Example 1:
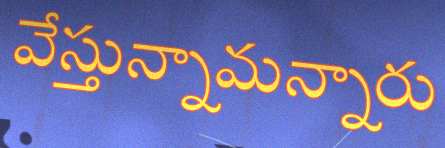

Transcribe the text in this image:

వేస్తున్నామన్నారు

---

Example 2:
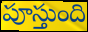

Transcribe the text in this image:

పూస్తుంది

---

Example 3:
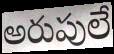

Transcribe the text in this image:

అరుపులే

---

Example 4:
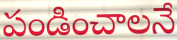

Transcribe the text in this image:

పండించాలనే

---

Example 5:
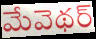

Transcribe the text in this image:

మేవెథర్